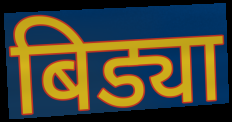
बिड्या